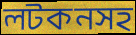
লটকনসহ